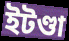
ইটণ্ডা